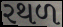
રથળ